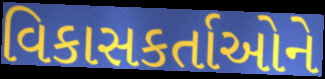
વિકાસકર્તાઓને